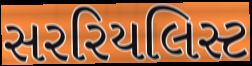
સરરિયલિસ્ટ